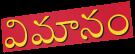
విమానం